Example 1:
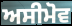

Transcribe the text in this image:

ਅਸੀਮੋਵ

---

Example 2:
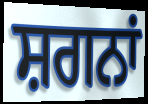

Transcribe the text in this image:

ਸ਼ਗਨਾਂ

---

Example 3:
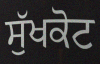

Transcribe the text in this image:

ਸੁੱਖਕੋਟ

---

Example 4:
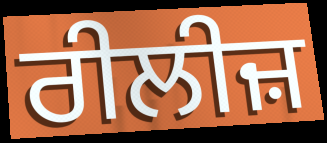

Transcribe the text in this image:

ਰੀਲੀਜ਼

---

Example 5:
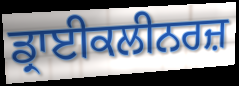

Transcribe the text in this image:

ਡ੍ਰਾਈਕਲੀਨਰਜ਼